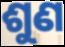
ଶୁଣ